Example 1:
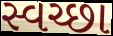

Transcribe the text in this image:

સ્વચ્છા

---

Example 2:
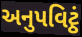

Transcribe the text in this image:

અનુપવિટ્ઠં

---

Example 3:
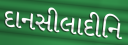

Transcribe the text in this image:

દાનસીલાદીનિ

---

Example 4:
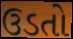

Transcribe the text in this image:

ઉડતો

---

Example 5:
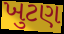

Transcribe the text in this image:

ખુટણ